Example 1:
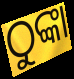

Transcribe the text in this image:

ଠୁଙ୍କା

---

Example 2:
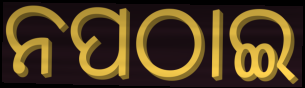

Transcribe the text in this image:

ନପଠାଇ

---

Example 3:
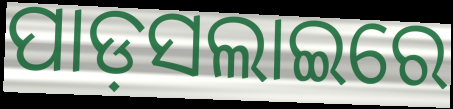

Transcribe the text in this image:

ପାଡ଼ସଲାଇରେ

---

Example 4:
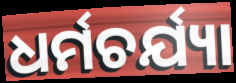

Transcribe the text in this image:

ଧର୍ମଚର୍ଯ୍ୟା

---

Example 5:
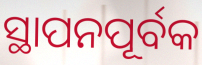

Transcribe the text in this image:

ସ୍ଥାପନପୂର୍ବକ